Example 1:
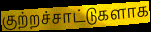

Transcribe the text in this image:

குற்றச்சாட்டுகளாக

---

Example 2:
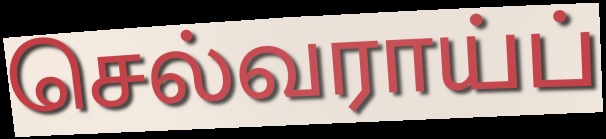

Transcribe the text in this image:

செல்வராய்ப்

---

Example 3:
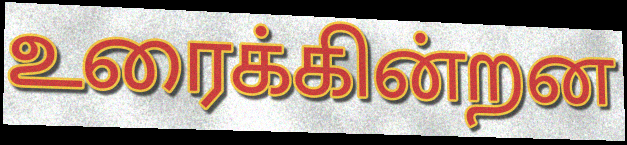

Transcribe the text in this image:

உரைக்கின்றன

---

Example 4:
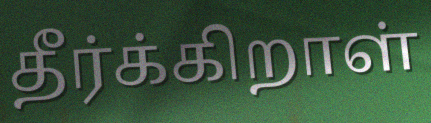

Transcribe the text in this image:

தீர்க்கிறாள்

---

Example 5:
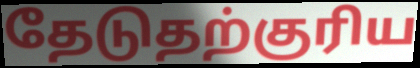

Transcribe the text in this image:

தேடுதற்குரிய